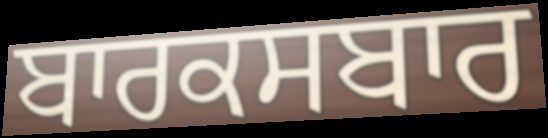
ਬਾਰਕਸਬਾਰ